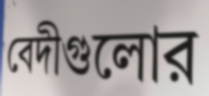
বেদীগুলোর